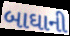
બાઘાની